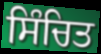
ਸਿੰਚਿਤ